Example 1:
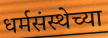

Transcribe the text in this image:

धर्मसंस्थेच्या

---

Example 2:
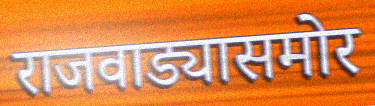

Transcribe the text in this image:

राजवाड्यासमोर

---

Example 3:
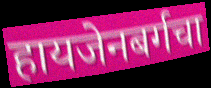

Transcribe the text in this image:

हायजेनबर्गचा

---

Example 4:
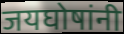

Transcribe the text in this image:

जयघोषांनी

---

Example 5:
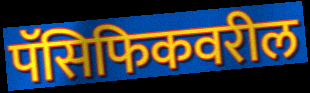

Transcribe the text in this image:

पॅसिफिकवरील